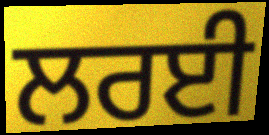
ਲਰਈ